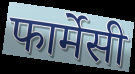
फार्मेसी